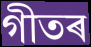
গীতৰ